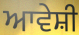
ਆਵੇਸ਼ੀ